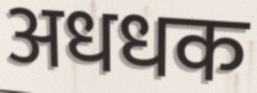
अधधक